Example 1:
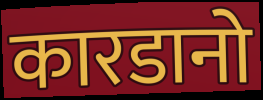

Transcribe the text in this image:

कारडानो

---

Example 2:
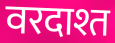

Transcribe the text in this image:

वरदाश्त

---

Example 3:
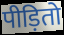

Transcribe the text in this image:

पीड़ितो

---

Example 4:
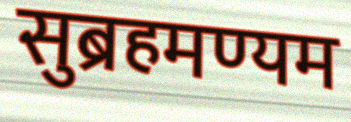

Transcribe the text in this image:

सुब्रहमण्यम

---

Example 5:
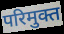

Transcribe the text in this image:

परिमुक्त